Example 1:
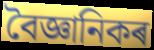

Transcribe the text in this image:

বৈজ্ঞানিকৰ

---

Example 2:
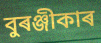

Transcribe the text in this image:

বুৰঞ্জীকাৰ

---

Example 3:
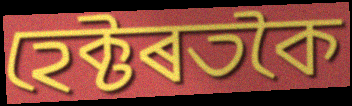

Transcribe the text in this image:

হেক্টৰতকৈ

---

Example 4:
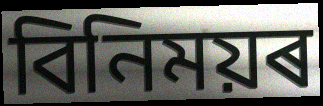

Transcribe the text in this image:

বিনিময়ৰ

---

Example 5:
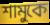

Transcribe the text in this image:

শামুকে